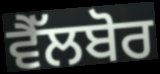
ਵੈੱਲਬੋਰ